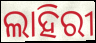
ଲାହିରୀ